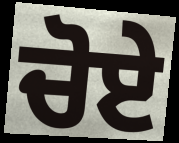
ਚੋਏ